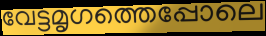
വേട്ടമൃഗത്തെപ്പോലെ